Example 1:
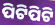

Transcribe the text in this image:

ପିଟିପିଟି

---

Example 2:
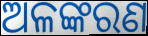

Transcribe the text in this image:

ଅଳଙ୍କରଣ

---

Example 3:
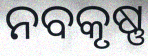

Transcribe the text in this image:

ନବକୃଷ୍ଣ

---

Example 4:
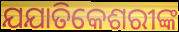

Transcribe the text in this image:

ଯଯାତିକେଶରୀଙ୍କ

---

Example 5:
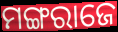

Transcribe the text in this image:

ମଙ୍ଗରାଜେ